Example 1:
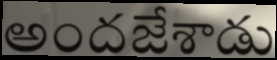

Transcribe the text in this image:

అందజేశాడు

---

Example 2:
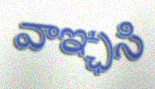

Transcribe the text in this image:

వాఞ్ఛసి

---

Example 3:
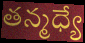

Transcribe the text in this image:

తన్మధ్యే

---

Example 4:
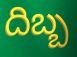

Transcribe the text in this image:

దిబ్బ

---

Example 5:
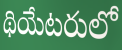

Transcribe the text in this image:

థియేటరులో